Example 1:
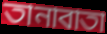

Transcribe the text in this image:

তানাবাতা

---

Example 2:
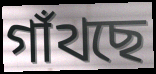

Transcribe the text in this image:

গাঁথছে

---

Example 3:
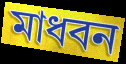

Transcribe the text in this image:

মাধবন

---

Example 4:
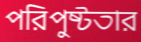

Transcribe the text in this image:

পরিপুষ্টতার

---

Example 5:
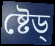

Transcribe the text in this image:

ষ্টেড্